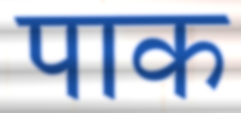
पाक